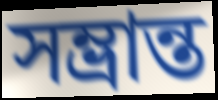
সম্ভ্ৰান্ত